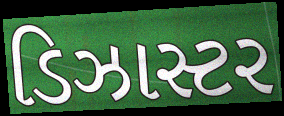
ડિઝાસ્ટર